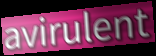
avirulent